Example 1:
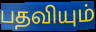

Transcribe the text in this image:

பதவியும்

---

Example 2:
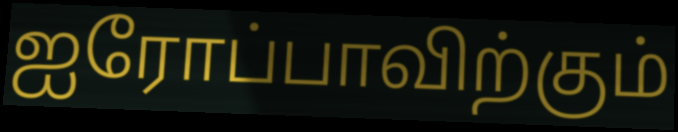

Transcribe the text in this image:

ஐரோப்பாவிற்கும்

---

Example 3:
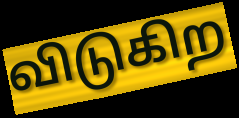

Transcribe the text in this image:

விடுகிற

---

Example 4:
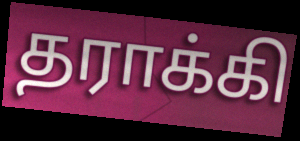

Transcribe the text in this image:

தராக்கி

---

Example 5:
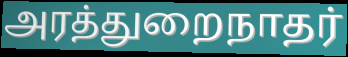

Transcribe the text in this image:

அரத்துறைநாதர்